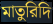
মাতুরিদি